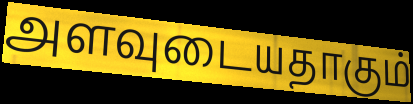
அளவுடையதாகும்